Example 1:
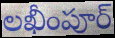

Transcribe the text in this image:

లఖీంపూర్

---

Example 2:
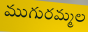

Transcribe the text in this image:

ముగురమ్మల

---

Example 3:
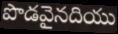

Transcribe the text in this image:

పొడవైనదియు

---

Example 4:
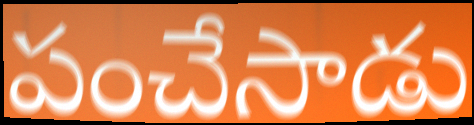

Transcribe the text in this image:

పంచేసాడు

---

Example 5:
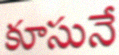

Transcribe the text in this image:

కూసునే